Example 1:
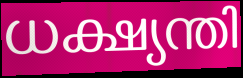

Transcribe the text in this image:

ധക്ഷ്യന്തി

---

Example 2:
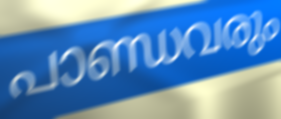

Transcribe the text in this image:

പാണ്ഡവരും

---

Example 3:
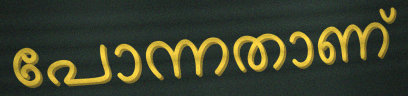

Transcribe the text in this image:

പോന്നതാണ്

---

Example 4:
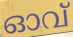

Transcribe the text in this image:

ഓവ്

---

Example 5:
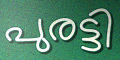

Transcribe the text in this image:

പുരട്ടി